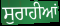
ਸੁਰਾਹੀਆਂ